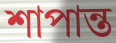
শাপান্ত